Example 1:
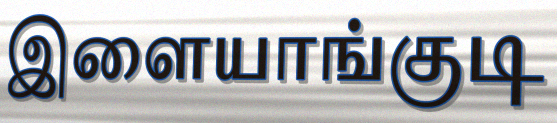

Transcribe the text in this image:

இளையாங்குடி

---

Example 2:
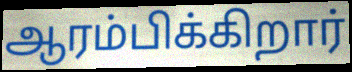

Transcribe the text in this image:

ஆரம்பிக்கிறார்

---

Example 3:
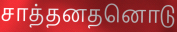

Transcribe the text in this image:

சாத்தனதனொடு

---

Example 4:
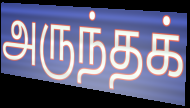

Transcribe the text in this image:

அருந்தக்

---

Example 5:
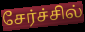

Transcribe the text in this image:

சேர்ச்சில்